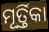
ମୂର୍ତ୍ତିକା